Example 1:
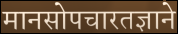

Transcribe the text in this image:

मानसोपचारतज्ञाने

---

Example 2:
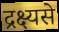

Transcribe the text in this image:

द्रक्ष्यसे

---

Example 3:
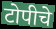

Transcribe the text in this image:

टोपीचे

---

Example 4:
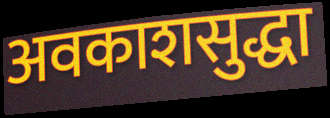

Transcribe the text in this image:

अवकाशसुद्धा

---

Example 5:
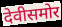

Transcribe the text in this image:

देवीसमोर